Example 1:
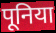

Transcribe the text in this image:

पूनिया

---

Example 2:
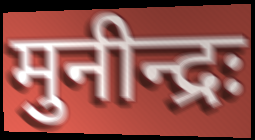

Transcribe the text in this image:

मुनीन्द्रः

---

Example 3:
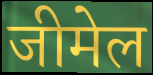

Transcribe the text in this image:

जीमेल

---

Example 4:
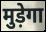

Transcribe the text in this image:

मुड़ेगा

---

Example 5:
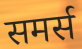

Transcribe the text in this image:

समर्स